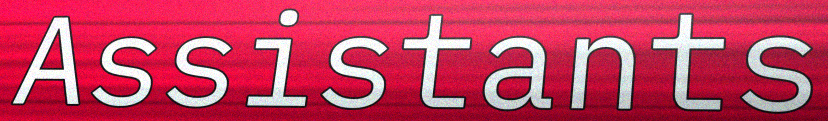
Assistants